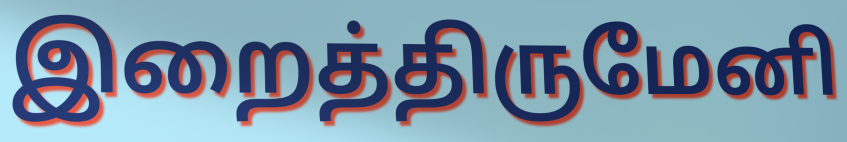
இறைத்திருமேனி